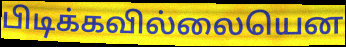
பிடிக்கவில்லையென